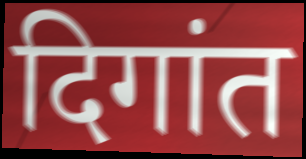
दिगांत